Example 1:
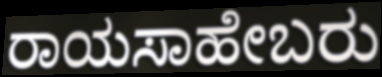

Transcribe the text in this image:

ರಾಯಸಾಹೇಬರು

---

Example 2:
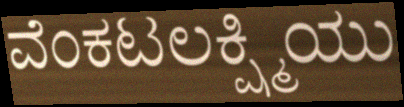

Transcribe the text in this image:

ವೆಂಕಟಲಕ್ಷ್ಮಿಯು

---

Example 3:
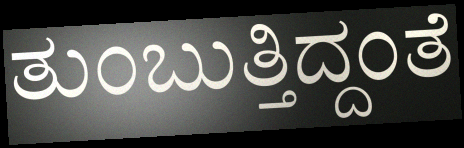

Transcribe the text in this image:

ತುಂಬುತ್ತಿದ್ದಂತೆ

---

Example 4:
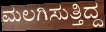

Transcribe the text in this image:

ಮಲಗಿಸುತ್ತಿದ್ದ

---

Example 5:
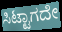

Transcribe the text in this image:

ಸಿಟ್ಟಾಗದೇ